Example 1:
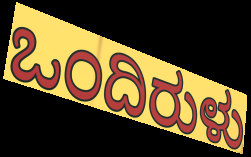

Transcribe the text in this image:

ಒಂದಿರುಳು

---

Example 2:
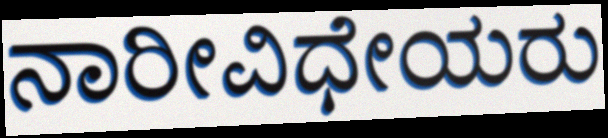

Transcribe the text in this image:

ನಾರೀವಿಧೇಯರು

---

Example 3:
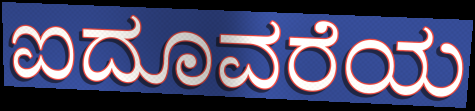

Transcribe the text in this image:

ಐದೂವರೆಯ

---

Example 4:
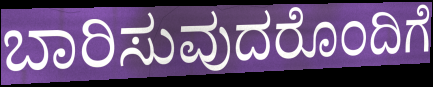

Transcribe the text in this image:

ಬಾರಿಸುವುದರೊಂದಿಗೆ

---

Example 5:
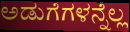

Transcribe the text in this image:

ಅಡುಗೆಗಳನ್ನೆಲ್ಲ